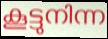
കൂട്ടുനിന്ന